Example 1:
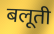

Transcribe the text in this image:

बलूती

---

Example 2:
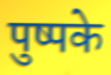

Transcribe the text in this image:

पुष्पके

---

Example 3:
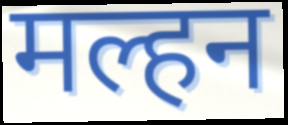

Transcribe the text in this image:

मल्हन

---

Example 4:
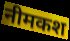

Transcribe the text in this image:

नीमकश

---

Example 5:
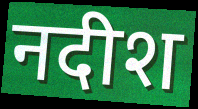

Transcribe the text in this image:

नदीश